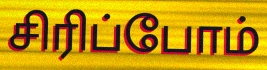
சிரிப்போம்